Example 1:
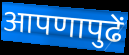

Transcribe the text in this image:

आपणापुढें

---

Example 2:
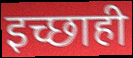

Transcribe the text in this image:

इच्छाही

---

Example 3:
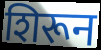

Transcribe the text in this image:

शिरून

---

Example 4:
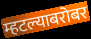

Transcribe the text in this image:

म्हटल्याबरोबर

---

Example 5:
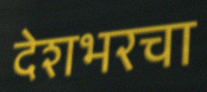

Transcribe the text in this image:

देशभरचा